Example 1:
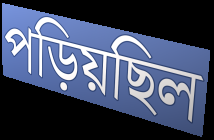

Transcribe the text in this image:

পড়িয়ছিল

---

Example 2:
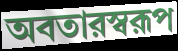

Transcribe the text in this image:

অবতারস্বরূপ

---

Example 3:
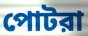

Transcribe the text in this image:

পোটরা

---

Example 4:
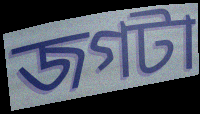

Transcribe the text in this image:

জগটা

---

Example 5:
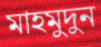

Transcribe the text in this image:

মাহমুদুন